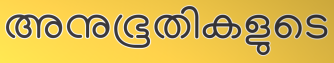
അനുഭൂതികളുടെ